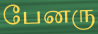
பேனரு